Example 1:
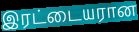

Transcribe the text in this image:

இரட்டையரான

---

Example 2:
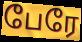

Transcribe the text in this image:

பேரே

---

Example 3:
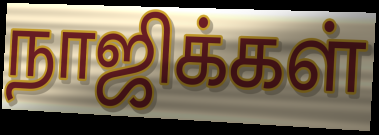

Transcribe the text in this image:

நாஜிக்கள்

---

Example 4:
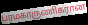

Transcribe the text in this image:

பரமகாருணிகரான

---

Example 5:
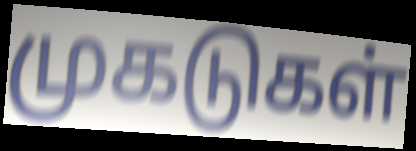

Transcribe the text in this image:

முகடுகள்